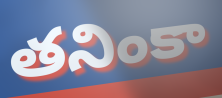
తనింకా